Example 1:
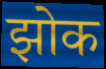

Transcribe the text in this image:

झोक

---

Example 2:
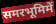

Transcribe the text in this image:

समरभूमिमें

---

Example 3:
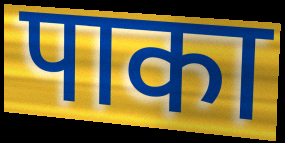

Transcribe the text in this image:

पाका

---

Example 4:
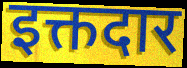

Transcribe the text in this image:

इक्तदार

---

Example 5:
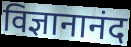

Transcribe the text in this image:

विज्ञानानंद